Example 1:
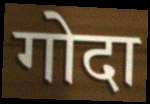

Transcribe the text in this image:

गोदा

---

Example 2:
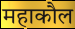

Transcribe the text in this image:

महाकौल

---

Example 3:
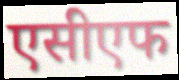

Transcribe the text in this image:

एसीएफ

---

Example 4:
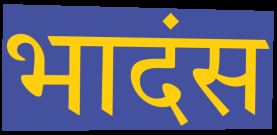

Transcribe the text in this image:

भादंस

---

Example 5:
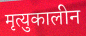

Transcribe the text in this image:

मृत्युकालीन